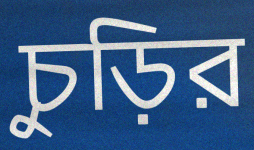
চুড়ির